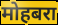
मोहबरा